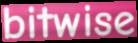
bitwise